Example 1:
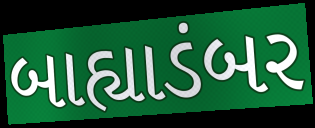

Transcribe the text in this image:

બાહ્યાડંબર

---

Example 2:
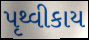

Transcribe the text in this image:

પૃથ્વીકાય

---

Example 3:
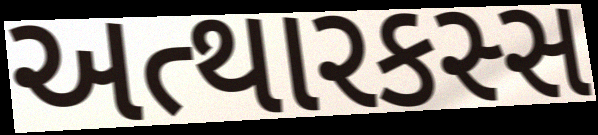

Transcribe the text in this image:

અત્થારકસ્સ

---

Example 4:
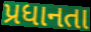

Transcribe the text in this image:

પ્રધાનતા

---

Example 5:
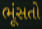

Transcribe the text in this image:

ભૂંસતો